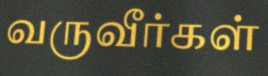
வருவீர்கள்